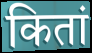
कितां